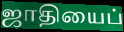
ஜாதியைப்